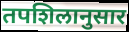
तपशिलानुसार